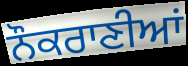
ਨੌਕਰਾਣੀਆਂ